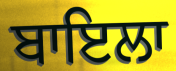
ਬਾਇਲਾ